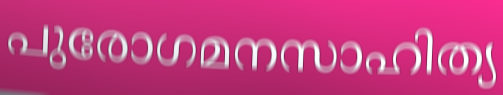
പുരോഗമനസാഹിത്യ